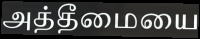
அத்தீமையை